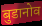
बुडानोव